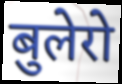
बुलेरो